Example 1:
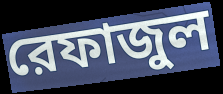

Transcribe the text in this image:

রেফাজুল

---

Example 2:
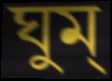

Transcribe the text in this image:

ঘুম্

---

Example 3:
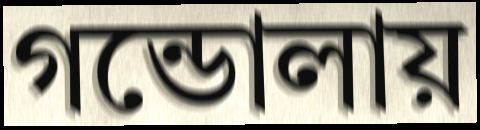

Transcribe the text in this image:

গন্ডোলায়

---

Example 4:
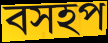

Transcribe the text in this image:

বসহপ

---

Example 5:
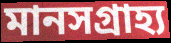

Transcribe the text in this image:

মানসগ্রাহ্য